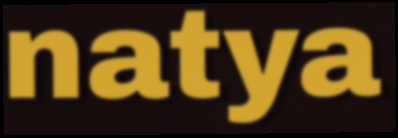
natya